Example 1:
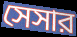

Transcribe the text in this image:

সেসার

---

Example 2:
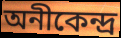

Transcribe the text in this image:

অনীকেন্দ্র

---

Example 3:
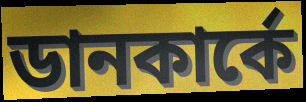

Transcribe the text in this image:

ডানকার্কে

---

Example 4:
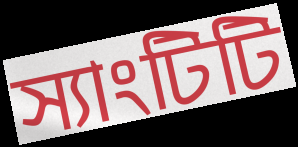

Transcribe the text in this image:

স্যাংটিটি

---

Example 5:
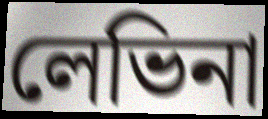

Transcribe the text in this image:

লেভিনা